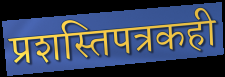
प्रशस्तिपत्रकही